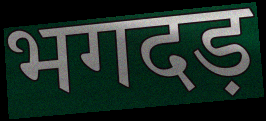
भगदड़